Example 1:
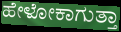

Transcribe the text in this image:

ಹೇಳೋಕಾಗುತ್ತಾ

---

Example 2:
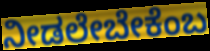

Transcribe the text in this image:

ನೀಡಲೇಬೇಕೆಂಬ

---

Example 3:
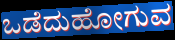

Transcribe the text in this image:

ಒಡೆದುಹೋಗುವ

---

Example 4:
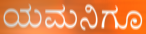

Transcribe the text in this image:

ಯಮನಿಗೂ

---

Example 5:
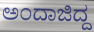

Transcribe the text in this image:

ಅಂದಾಜಿದ್ದ